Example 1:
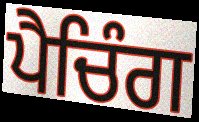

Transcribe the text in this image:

ਪੈਚਿੰਗ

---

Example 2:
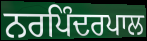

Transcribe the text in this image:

ਨਰਪਿੰਦਰਪਾਲ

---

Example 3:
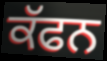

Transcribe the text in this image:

ਕੱਫਨ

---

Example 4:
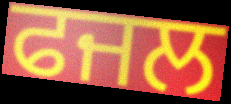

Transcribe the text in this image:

ਫਜਲ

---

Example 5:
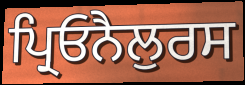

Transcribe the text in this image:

ਪ੍ਰਿਓਨੈਲੁਰਸ